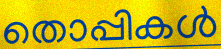
തൊപ്പികൾ